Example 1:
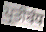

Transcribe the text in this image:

ਪ੍ਰਤੀਬੰਧ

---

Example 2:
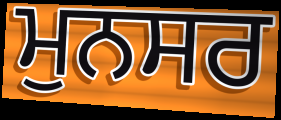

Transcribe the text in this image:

ਮੁਨਸਰ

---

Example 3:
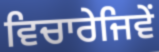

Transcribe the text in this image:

ਵਿਚਾਰੇਜਿਵੇਂ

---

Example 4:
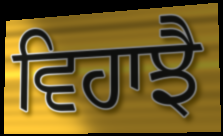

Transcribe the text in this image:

ਵਿਹਾਝੈ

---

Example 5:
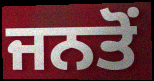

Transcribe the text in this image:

ਜਨਤੋਂ